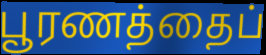
பூரணத்தைப்